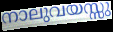
നാലുവയസ്സു